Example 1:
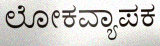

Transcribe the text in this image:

ಲೋಕವ್ಯಾಪಕ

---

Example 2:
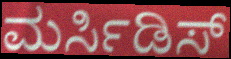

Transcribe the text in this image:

ಮರ್ಸಿಡಿಸ್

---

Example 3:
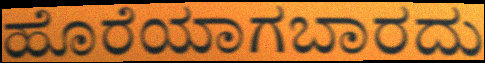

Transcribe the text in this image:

ಹೊರೆಯಾಗಬಾರದು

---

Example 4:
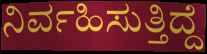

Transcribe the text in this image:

ನಿರ್ವಹಿಸುತ್ತಿದ್ದೆ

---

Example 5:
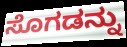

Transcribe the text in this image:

ಸೊಗಡನ್ನು